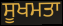
ਸੂਖਮਤਾ